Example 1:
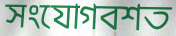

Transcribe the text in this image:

সংযোগবশত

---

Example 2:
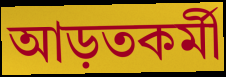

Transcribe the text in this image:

আড়তকর্মী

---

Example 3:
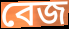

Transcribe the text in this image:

বেজ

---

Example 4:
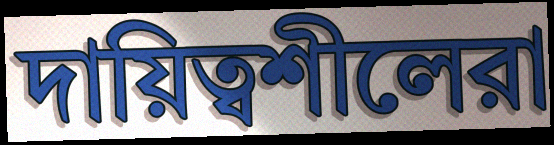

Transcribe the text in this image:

দায়িত্বশীলেরা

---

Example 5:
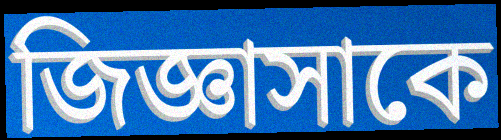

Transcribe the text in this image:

জিজ্ঞাসাকে